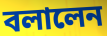
বলালেন